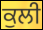
ਕੁਲੀ